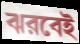
ঝরবেই